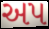
અપ